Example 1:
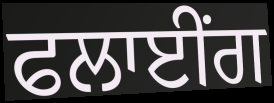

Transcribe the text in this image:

ਫਲਾਈਂਗ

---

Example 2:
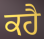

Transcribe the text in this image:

ਕਹੈ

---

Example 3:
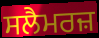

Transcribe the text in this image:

ਸਲੈਮਰਜ਼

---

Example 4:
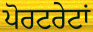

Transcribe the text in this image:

ਪੋਰਟਰੇਟਾਂ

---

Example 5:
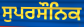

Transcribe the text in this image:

ਸੁਪਰਸੌਨਿਕ